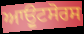
ਆਉੂਟਸੋਰਸ